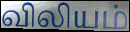
விலியம்